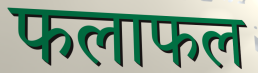
फलाफल